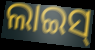
ଲାଇସ୍